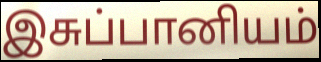
இசுப்பானியம்